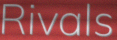
Rivals